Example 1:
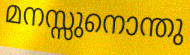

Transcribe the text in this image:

മനസ്സുനൊന്തു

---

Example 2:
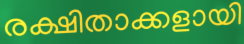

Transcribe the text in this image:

രക്ഷിതാക്കളായി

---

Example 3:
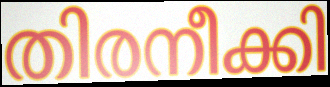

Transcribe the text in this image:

തിരനീക്കി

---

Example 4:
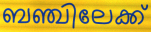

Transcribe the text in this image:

ബഞ്ചിലേക്ക്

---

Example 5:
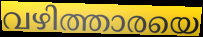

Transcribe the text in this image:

വഴിത്താരയെ